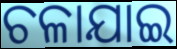
ଚଳାଯାଇ